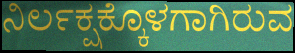
ನಿರ್ಲಕ್ಷಕ್ಕೊಳಗಾಗಿರುವ